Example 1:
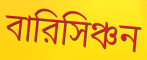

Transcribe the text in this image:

বারিসিঞ্চন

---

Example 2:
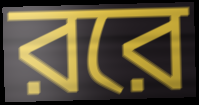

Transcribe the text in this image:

ররে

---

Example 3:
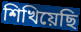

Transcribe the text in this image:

শিখিয়েছি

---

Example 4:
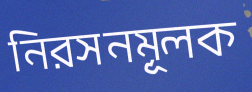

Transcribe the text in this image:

নিরসনমূলক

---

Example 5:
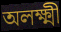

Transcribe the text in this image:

অলক্ষ্মী